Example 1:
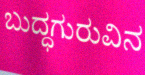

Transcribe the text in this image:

ಬುದ್ಧಗುರುವಿನ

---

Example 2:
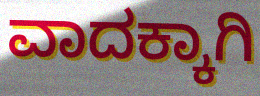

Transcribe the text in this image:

ವಾದಕ್ಕಾಗಿ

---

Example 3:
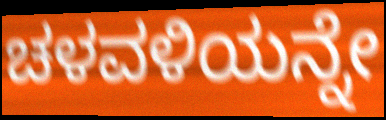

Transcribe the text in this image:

ಚಳವಳಿಯನ್ನೇ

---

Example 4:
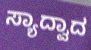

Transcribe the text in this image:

ಸ್ಯಾದ್ವಾದ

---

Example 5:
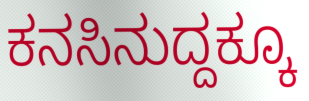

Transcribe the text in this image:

ಕನಸಿನುದ್ದಕ್ಕೂ